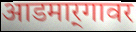
आडमार्गावर